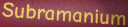
Subramanium